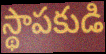
స్థాపకుడి